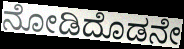
ನೋಡಿದೊಡನೇ